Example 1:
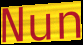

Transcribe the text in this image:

Nun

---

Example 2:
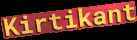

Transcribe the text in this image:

Kirtikant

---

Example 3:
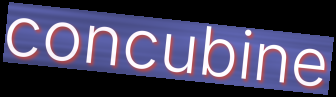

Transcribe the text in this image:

concubine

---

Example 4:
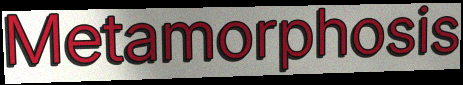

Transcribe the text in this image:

Metamorphosis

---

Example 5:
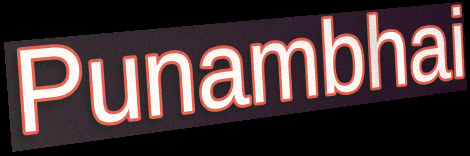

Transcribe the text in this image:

Punambhai